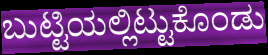
ಬುಟ್ಟಿಯಲ್ಲಿಟ್ಟುಕೊಂಡು